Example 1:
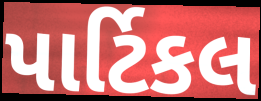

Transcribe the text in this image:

પાર્ટિકલ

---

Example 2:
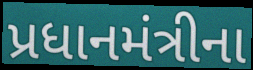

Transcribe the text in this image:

પ્રધાનમંત્રીના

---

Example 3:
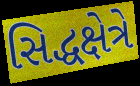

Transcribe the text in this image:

સિદ્ધક્ષેત્રે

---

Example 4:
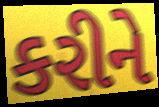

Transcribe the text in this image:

કરીને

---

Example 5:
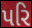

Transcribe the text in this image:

પરિ